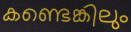
കണ്ടെങ്കിലും